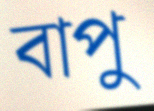
বাপু